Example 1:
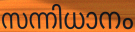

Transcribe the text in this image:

സന്നിധാനം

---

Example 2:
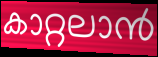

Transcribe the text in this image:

കാറ്റലാൻ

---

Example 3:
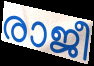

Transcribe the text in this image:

രാജീ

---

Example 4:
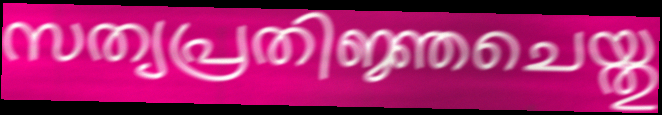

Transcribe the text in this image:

സത്യപ്രതിജ്ഞചെയ്തു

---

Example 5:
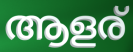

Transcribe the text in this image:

ആളര്